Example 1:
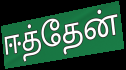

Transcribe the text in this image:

ஈத்தேன்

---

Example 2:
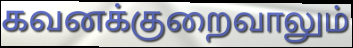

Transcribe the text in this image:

கவனக்குறைவாலும்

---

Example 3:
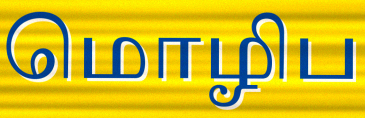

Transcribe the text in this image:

மொழிப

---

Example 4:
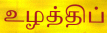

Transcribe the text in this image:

உழத்திப்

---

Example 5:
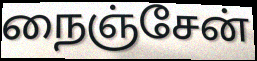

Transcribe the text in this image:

நைஞ்சேன்